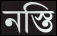
নস্তি